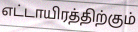
எட்டாயிரத்திற்கும்